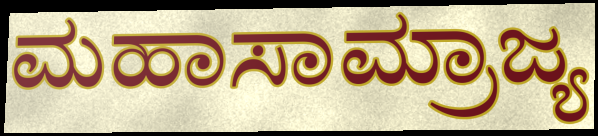
ಮಹಾಸಾಮ್ರಾಜ್ಯ